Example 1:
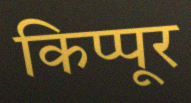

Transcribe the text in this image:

किप्पूर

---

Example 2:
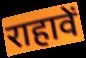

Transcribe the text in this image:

राहावें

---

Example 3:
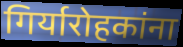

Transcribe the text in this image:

गिर्यारोहकांना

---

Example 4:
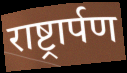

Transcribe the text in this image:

राष्ट्रार्पण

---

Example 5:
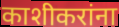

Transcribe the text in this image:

काशीकरांना